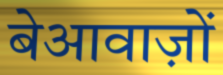
बेआवाज़ों